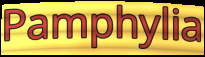
Pamphylia